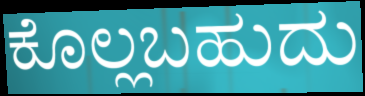
ಕೊಲ್ಲಬಹುದು